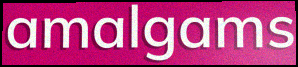
amalgams